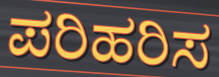
ಪರಿಹರಿಸ